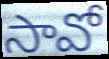
సావో